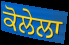
ਕੋਲੇਲਾ